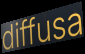
diffusa